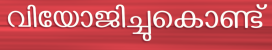
വിയോജിച്ചുകൊണ്ട്